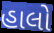
હાલો